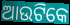
ଆଉଟିକେ